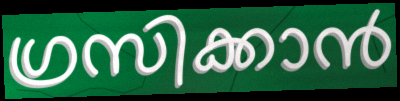
ഗ്രസിക്കാൻ